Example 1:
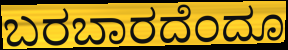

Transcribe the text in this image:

ಬರಬಾರದೆಂದೂ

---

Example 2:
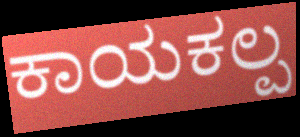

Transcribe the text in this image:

ಕಾಯಕಲ್ಪ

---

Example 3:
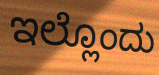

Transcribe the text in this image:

ಇಲ್ಲೊಂದು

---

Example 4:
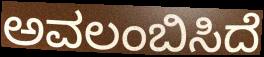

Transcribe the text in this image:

ಅವಲಂಬಿಸಿದೆ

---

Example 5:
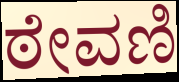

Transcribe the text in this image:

ಠೇವಣಿ